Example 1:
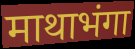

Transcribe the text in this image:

माथाभंगा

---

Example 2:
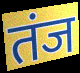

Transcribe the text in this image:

तंज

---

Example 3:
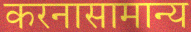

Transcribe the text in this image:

करनासामान्य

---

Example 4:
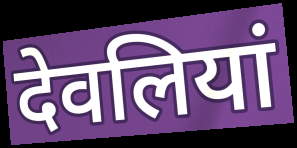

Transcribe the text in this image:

देवलियां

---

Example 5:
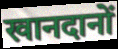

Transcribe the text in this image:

खानदानों